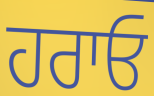
ਹਰਾਓ